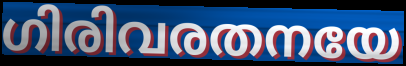
ഗിരിവരതനയേ